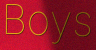
Boys